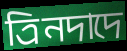
ত্রিনদাদে